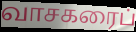
வாசகரைப்